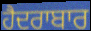
ਹੈਦਰਾਬਾਰ